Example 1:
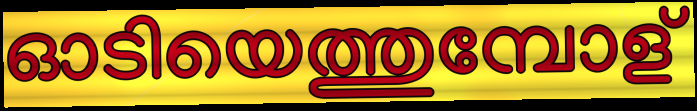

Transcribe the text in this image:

ഓടിയെത്തുമ്പോള്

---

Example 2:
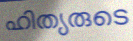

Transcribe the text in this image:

ഹിത്യരുടെ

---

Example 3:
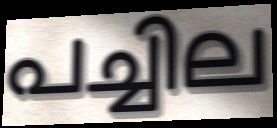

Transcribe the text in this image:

പച്ചില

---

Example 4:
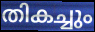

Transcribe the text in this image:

തികച്ചും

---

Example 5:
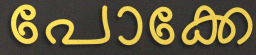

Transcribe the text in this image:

പോക്കേ